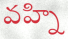
వహ్ని